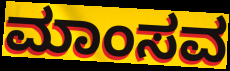
ಮಾಂಸವ